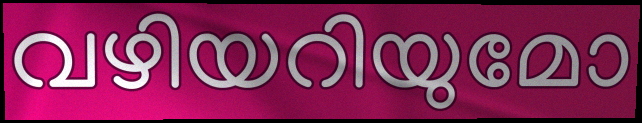
വഴിയറിയുമോ